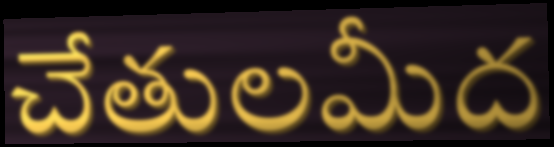
చేతులమీద